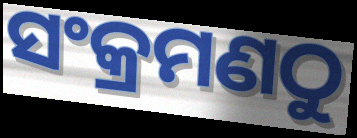
ସଂକ୍ରମଣଠୁ